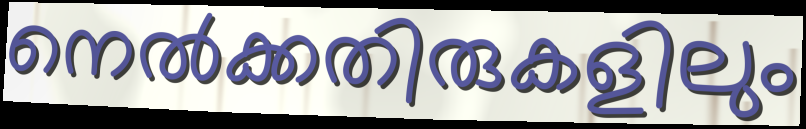
നെൽക്കതിരുകളിലും